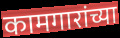
कामगारांच्या